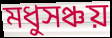
মধুসঞ্চয়